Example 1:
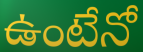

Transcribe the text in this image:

ఉంటేనో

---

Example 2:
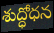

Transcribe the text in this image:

శుద్ధోధన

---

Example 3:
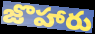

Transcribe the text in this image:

జొహారు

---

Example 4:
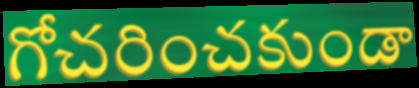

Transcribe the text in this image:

గోచరించకుండా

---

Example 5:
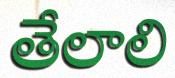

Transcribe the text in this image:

తేలాలి